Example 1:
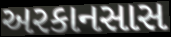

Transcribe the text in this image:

અરકાનસાસ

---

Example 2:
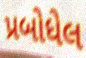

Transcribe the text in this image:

પ્રબોધેલ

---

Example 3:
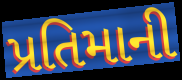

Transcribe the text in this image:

પ્રતિમાની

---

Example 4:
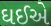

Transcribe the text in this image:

ઘઈએ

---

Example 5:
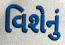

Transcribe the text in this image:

વિશેનું